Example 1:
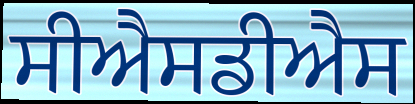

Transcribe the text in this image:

ਸੀਐਸਡੀਐਸ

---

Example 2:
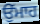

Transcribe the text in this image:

ਉੱਮਾਹ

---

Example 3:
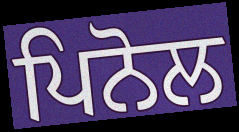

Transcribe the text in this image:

ਪਿਨੋਲ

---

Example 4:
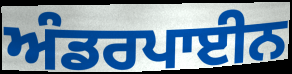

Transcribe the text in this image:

ਅੰਡਰਪਾਈਨ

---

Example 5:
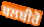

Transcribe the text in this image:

ਬਲਬੀਰੋ